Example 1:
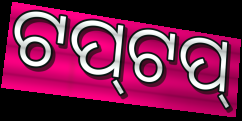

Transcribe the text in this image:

ଟପ୍‌ଟପ୍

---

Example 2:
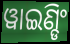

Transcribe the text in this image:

ୱାଇଣ୍ଡିଂ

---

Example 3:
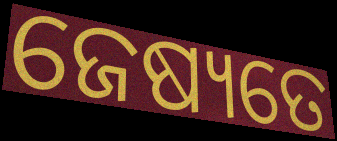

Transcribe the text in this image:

ଜେଷ୍ୟତେ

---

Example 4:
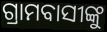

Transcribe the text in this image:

ଗ୍ରାମବାସୀଙ୍କୁ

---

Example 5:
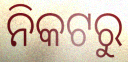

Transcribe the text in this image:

ନିକଟରୁ